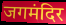
जगमंदिर